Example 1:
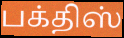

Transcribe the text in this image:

பக்திஸ்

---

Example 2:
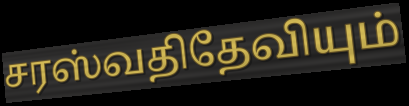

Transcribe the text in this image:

சரஸ்வதிதேவியும்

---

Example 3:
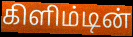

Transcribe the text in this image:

கிளிம்டின்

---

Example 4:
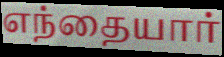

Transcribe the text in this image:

எந்தையார்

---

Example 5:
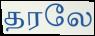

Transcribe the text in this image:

தரலே